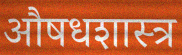
औषधशास्त्र